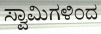
ಸ್ವಾಮಿಗಳಿಂದ